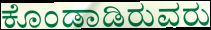
ಕೊಂಡಾಡಿರುವರು